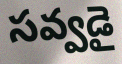
సవ్వడై